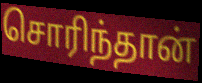
சொரிந்தான்